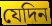
যেদিন